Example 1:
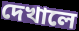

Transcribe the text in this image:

দেখালে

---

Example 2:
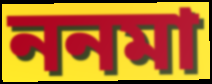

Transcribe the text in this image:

ননমা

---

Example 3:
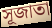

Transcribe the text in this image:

সূজাতা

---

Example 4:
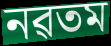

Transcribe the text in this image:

নৱতম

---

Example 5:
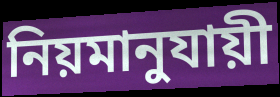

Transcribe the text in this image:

নিয়মানুযায়ী